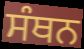
ਸੰਥਨ